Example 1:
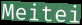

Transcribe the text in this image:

Meitei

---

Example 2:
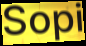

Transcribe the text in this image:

Sopi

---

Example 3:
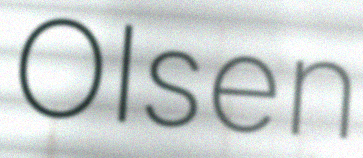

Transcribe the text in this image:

Olsen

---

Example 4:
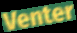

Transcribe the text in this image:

Venter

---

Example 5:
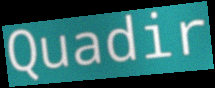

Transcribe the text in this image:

Quadir